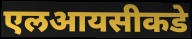
एलआयसीकडे